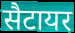
सैटायर